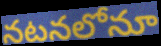
నటనలోనూ